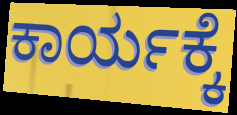
ಕಾರ್ಯಕ್ಕೆ